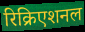
रिक्रिएशनल